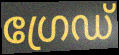
ഗ്രേഡ്